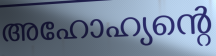
അഹോഹ്യന്റെ